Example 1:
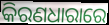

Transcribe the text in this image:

କିରଣଧାରାରେ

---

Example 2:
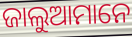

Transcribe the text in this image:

ଜାଲୁଆମାନେ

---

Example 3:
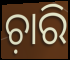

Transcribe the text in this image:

ଚ଼ାରି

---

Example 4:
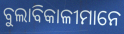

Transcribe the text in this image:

ବୁଲାବିକାଳୀମାନେ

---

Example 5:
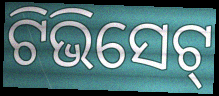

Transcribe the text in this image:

ଟିଭିସେଟ୍